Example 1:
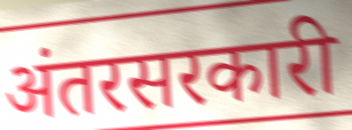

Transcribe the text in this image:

अंतरसरकारी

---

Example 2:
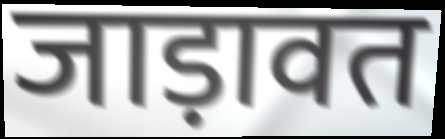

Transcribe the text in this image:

जाड़ावत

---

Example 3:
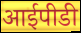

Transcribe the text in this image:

आईपीडी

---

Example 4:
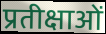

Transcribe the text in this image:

प्रतीक्षाओं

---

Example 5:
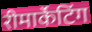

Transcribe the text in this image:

रीमार्केटिंग